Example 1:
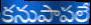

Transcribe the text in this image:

కనుపాపలే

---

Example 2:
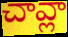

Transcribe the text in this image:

చావ్లా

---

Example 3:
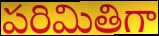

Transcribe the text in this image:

పరిమితిగా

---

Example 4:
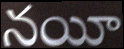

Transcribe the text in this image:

నయీ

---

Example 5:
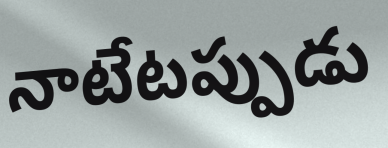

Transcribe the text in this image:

నాటేటప్పుడు